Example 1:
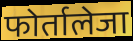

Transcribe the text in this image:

फोर्तालेजा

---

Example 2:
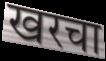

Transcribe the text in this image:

खरचा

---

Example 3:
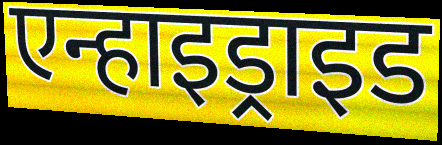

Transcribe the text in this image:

एन्हाइड्राइड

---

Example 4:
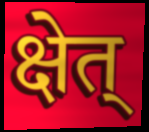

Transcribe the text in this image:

क्षेत्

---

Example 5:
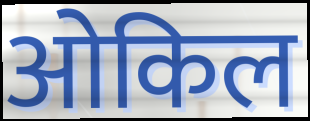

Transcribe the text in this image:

ओकिल